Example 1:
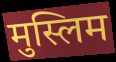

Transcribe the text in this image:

मुस्लिम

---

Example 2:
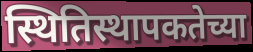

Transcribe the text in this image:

स्थितिस्थापकतेच्या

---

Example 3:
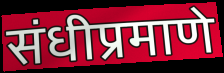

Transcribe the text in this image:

संधीप्रमाणे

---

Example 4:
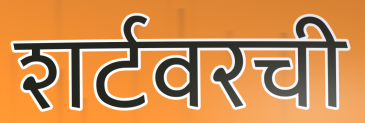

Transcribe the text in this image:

शर्टवरची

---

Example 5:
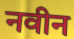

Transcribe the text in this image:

नवीन